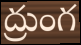
ద్రుంగ